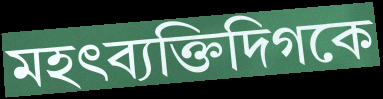
মহৎব্যক্তিদিগকে